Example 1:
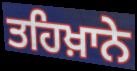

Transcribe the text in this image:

ਤਹਿਖ਼ਾਨੇ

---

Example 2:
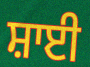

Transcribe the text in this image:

ਸ਼ਾਈ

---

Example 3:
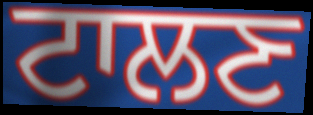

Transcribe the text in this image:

ਟਾਲਣ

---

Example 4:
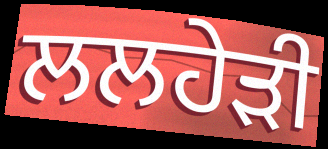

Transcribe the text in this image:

ਲਲਹੇੜੀ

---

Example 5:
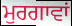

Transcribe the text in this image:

ਮੁਰਗਾਵਾਂ